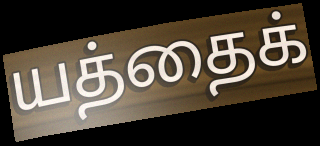
யத்தைக்